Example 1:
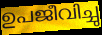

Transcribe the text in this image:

ഉപജീവിച്ചു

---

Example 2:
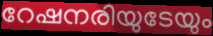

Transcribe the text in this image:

റേഷനരിയുടേയും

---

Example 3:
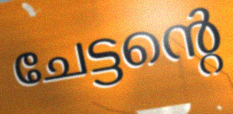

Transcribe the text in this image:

ചേട്ടന്റെ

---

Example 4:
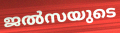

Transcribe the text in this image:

ജൽസയുടെ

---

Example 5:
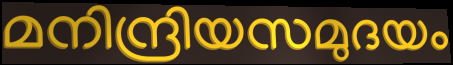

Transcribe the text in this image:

മനിന്ദ്രിയസമുദയം